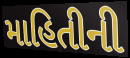
માહિતીની